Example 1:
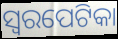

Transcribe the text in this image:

ସ୍ୱରପେଟିକା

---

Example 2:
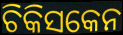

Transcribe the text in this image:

ଚିକିସକେନ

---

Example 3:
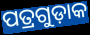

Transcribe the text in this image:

ପତ୍ରଗୁଡ଼ାକ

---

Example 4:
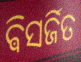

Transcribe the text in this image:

ଵିସର୍ଜିତ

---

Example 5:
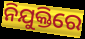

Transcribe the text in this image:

ନିଯୁକ୍ତିରେ